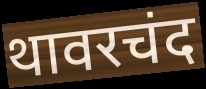
थावरचंद